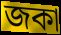
জকা